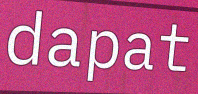
dapat